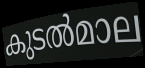
കുടൽമാല